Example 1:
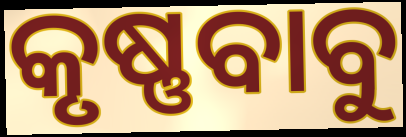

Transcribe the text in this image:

କୃଷ୍ଣବାବୁ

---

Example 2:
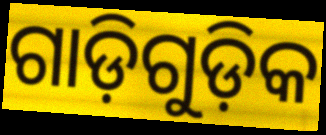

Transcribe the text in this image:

ଗାଡ଼ିଗୁଡ଼ିକ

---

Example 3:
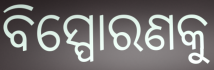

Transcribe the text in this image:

ବିସ୍ପୋରଣକୁ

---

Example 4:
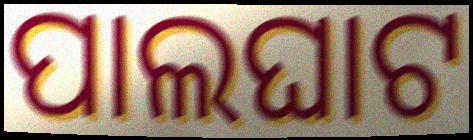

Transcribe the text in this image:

ପାଲଘାଟ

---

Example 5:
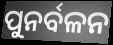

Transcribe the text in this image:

ପୁନର୍ବଳନ